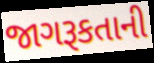
જાગરૂકતાની